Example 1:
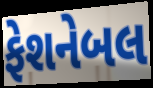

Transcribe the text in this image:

ફેશનેબલ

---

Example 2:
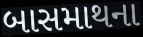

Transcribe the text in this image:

બાસમાથના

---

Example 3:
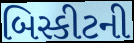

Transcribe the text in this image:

બિસ્કીટની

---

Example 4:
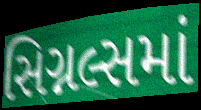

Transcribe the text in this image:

સિગ્નલ્સમાં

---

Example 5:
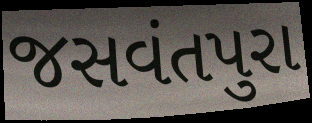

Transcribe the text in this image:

જસવંતપુરા